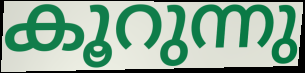
കൂറുന്നു